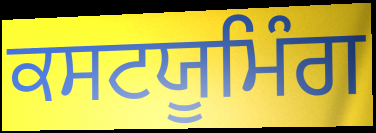
ਕਸਟਯੂਮਿੰਗ